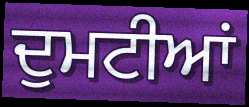
ਦੁਮਟੀਆਂ